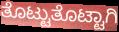
ತೊಟ್ಟುತೊಟ್ಟಾಗಿ